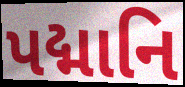
પદ્માનિ